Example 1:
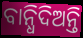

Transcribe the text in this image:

ବାନ୍ଧିଦିଅନ୍ତି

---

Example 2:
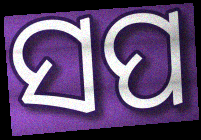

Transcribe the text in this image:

ସପ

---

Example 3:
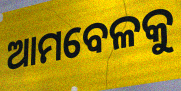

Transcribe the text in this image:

ଆମବେଳକୁ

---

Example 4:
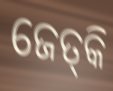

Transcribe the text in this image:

ଜେତ୍‌କି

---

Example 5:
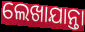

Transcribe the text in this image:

ଲେଖାଯାନ୍ତା